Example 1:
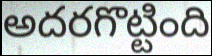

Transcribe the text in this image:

అదరగొట్టింది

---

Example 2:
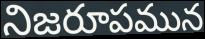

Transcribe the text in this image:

నిజరూపమున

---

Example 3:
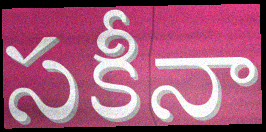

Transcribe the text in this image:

సకీనా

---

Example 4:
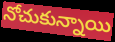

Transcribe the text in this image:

నోచుకున్నాయి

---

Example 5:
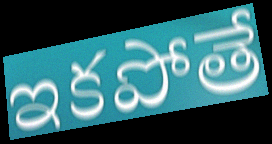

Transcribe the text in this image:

ఇకపోతే